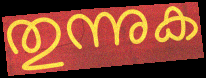
തുന്നുക